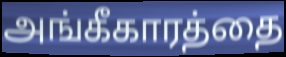
அங்கீகாரத்தை